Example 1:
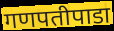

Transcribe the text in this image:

गणपतीपाडा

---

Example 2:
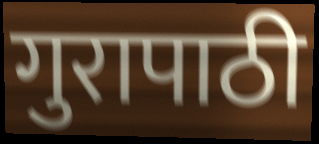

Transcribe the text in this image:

गुरापाठी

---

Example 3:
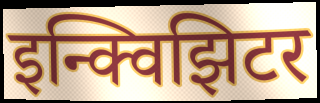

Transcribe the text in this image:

इन्क्विझिटर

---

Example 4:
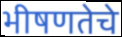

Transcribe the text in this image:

भीषणतेचे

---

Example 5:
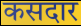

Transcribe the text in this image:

कसदार